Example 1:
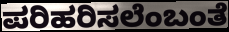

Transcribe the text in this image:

ಪರಿಹರಿಸಲೆಂಬಂತೆ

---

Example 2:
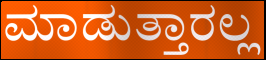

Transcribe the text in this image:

ಮಾಡುತ್ತಾರಲ್ಲ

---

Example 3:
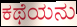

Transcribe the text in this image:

ಕಥೆಯನು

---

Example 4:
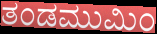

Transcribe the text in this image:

ತಂಡಮುಮಿಂ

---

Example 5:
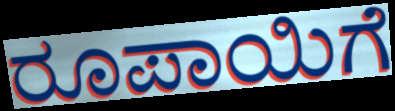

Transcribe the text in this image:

ರೂಪಾಯಿಗೆ